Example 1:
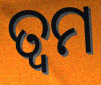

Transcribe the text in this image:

ତ୍ୱମ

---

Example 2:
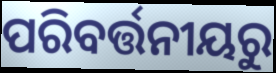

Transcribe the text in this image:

ପରିବର୍ତ୍ତନୀୟରୁ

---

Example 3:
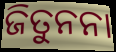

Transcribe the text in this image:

ଜିତୁନନା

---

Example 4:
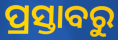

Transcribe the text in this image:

ପ୍ରସ୍ତାବରୁ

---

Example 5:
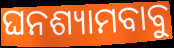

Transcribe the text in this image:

ଘନଶ୍ୟାମବାବୁ